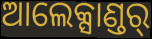
ଆଲେକ୍ସାଣ୍ଡର୍